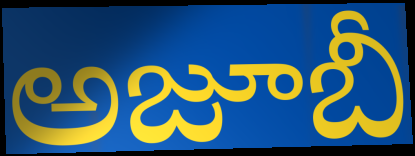
అజూబీ